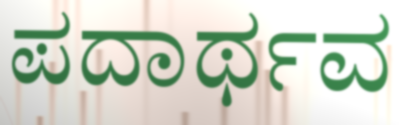
ಪದಾರ್ಥವ